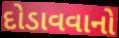
દોડાવવાનો